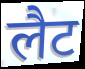
लैट